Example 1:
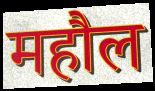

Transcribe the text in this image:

महौल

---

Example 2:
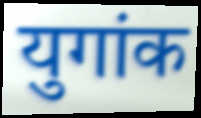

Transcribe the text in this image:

युगांक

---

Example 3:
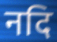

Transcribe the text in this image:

नदि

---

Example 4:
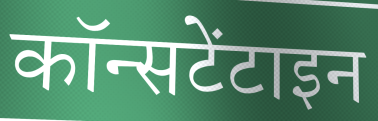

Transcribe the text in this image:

कॉन्सटेंटाइन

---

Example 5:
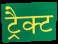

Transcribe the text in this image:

ट्रैक्ट